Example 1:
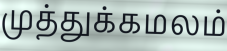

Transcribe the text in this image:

முத்துக்கமலம்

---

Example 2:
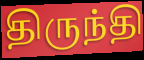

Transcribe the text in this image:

திருந்தி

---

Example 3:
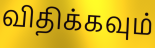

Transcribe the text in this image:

விதிக்கவும்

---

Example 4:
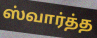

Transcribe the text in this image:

ஸ்வார்த்த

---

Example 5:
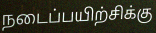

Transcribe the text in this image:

நடைப்பயிற்சிக்கு